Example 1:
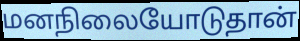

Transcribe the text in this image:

மனநிலையோடுதான்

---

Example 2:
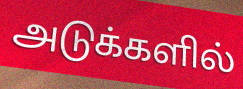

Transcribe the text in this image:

அடுக்களில்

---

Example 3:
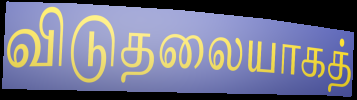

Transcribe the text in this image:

விடுதலையாகத்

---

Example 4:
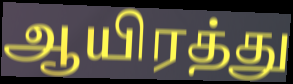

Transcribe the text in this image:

ஆயிரத்து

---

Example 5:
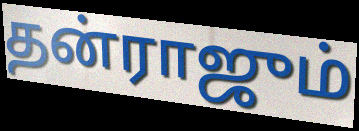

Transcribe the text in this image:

தன்ராஜும்